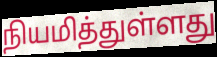
நியமித்துள்ளது